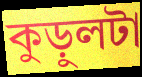
কুড়ুলটা